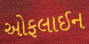
ઓફલાઈન